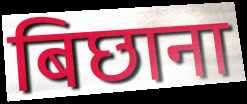
बिछाना